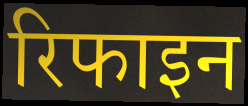
रिफाइन